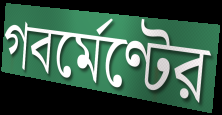
গবর্মেণ্টের